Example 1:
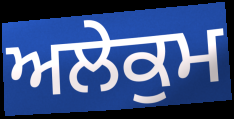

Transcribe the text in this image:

ਅਲੇਕੁਮ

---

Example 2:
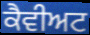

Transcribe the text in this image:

ਕੈਵੀਅਟ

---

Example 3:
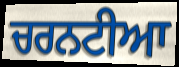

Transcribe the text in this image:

ਚਰਨਟੀਆ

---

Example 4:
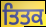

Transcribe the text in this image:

ਤਿਤਕ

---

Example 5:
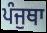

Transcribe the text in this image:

ਪੰਜੁਥਾ